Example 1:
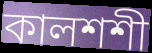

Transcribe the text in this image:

কালশশী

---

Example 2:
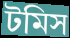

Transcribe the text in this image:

টমিস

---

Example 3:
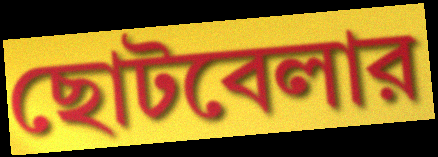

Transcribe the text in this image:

ছোটবেলার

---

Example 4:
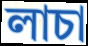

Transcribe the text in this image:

লাচা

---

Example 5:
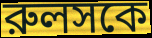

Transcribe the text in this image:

রুলসকে